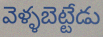
వెళ్ళబెట్టేడు